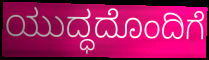
ಯುದ್ಧದೊಂದಿಗೆ